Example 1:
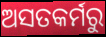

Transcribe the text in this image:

ଅସତକର୍ମରୁ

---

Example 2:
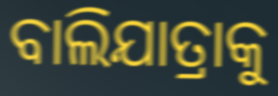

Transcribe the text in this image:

ବାଲିଯାତ୍ରାକୁ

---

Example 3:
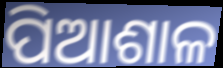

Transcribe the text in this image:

ପିଆଶାଳ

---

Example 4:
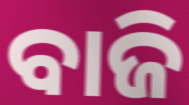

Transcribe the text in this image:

ବାଜି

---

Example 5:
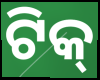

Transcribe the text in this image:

ଟିକ୍